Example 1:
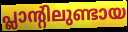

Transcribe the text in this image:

പ്ലാന്റിലുണ്ടായ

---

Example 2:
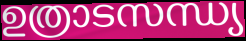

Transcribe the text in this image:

ഉത്രാടസന്ധ്യ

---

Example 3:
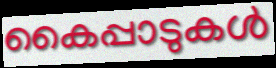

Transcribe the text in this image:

കൈപ്പാടുകൾ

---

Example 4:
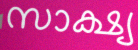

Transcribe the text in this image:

സാക്ഷ്യ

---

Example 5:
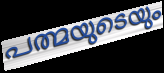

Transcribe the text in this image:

പത്മയുടെയും